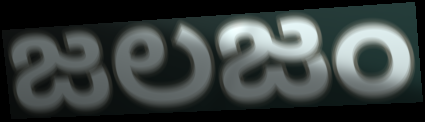
జలజం